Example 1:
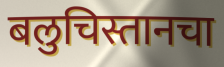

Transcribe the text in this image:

बलुचिस्तानचा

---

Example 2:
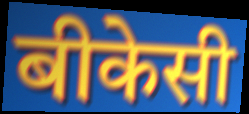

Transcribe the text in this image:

बीकेसी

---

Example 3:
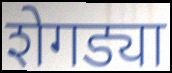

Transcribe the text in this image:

शेगड्या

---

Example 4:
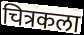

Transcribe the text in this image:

चित्रकला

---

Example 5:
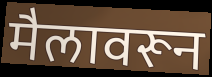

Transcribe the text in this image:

मैलावरून